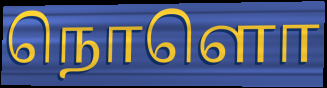
நொளொ